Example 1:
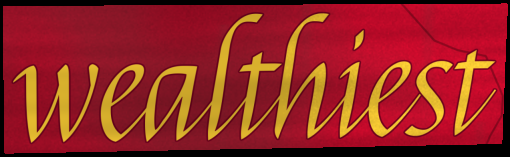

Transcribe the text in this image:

wealthiest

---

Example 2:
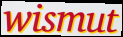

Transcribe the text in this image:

wismut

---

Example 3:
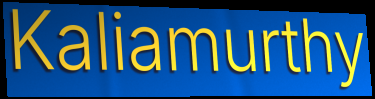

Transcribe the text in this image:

Kaliamurthy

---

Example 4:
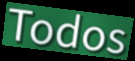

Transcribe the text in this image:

Todos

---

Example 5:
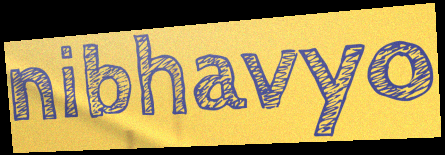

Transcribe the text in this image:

nibhavyo